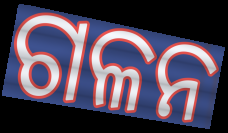
ଗଳନ